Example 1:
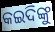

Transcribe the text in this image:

କଇଦିଙ୍କୁ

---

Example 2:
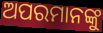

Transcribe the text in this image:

ଅପରମାନଙ୍କୁ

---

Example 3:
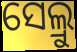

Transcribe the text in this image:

ସେଲ୍ରୁ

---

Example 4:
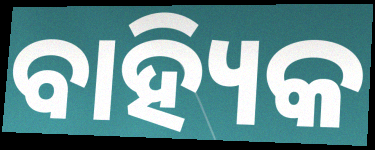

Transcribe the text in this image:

ବାହ୍ୟିକ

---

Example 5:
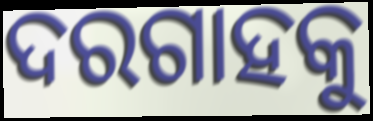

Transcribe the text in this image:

ଦରଗାହକୁ